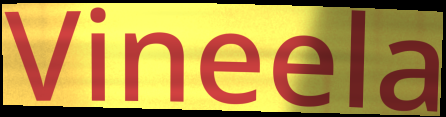
Vineela